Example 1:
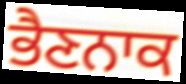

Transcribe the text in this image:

ਭੈਣਨਾਕ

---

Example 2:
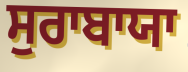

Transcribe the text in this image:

ਸੁਰਾਬਾਯਾ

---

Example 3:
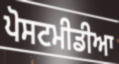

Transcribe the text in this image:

ਪੋਸਟਮੀਡੀਆ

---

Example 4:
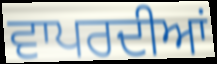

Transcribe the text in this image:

ਵਾਪਰਦੀਆਂ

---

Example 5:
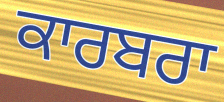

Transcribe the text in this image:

ਕਾਰਬਰਾ